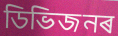
ডিভিজনৰ